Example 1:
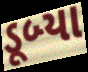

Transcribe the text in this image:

ડૂબ્યા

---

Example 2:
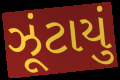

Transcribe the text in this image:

ઝૂંટાયું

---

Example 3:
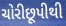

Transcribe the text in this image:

ચોરીછૂપીથી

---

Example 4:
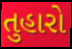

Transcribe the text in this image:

તુહારો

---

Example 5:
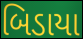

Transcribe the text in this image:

બિડાયા